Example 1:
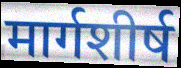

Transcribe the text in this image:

मार्गशीर्ष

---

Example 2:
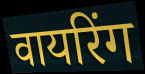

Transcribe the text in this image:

वायरिंग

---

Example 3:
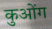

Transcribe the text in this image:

कुओंग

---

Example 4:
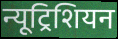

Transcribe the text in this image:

न्यूट्रिशियन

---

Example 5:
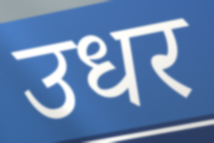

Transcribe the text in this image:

उधर